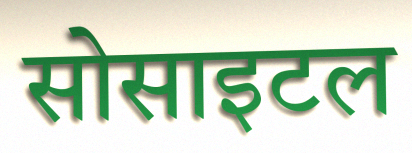
सोसाइटल